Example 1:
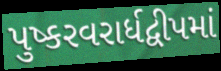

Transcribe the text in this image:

પુષ્કરવરાર્ધદ્વીપમાં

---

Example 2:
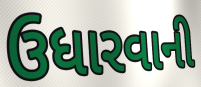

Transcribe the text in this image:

ઉધારવાની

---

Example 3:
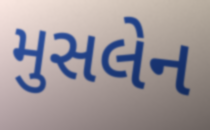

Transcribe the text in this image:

મુસલેન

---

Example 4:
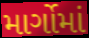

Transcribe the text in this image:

માર્ગોમાં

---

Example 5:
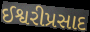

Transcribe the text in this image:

ઈશ્વરીપ્રસાદ